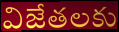
విజేతలకు